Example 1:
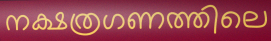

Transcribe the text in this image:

നക്ഷത്രഗണത്തിലെ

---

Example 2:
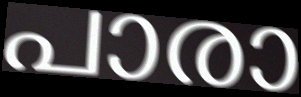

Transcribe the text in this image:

പാരാ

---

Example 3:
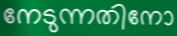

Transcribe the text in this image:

നേടുന്നതിനോ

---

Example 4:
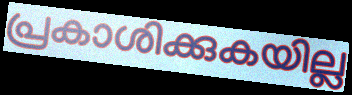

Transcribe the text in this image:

പ്രകാശിക്കുകയില്ല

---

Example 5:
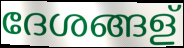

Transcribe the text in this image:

ദേശങ്ങള്